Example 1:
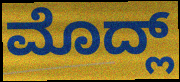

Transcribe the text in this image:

ಮೊದ್ಲ್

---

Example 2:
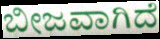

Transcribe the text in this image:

ಬೀಜವಾಗಿದೆ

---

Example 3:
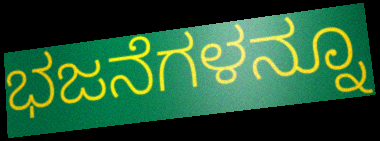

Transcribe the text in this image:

ಭಜನೆಗಳನ್ನೂ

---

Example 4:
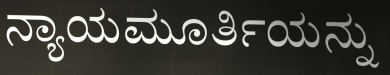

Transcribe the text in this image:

ನ್ಯಾಯಮೂರ್ತಿಯನ್ನು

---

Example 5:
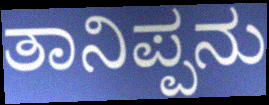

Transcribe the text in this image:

ತಾನಿಪ್ಪನು